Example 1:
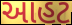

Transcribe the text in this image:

આહટ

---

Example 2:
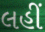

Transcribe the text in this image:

લહીં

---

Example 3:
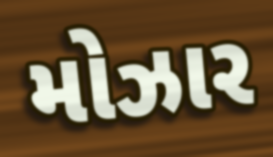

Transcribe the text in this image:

મોઝાર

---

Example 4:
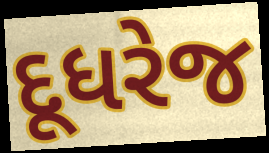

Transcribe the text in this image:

દૂધરેજ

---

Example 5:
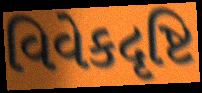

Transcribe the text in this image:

વિવેકદૃષ્ટિ